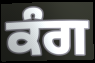
ਕੰਗ